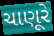
ચાણૂરે